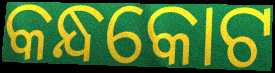
କନ୍ଧକୋଟ